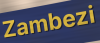
Zambezi